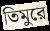
তিমুরে